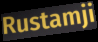
Rustamji